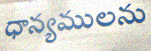
ధాన్యములను